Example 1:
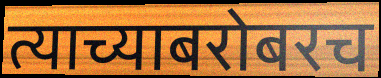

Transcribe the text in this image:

त्याच्याबरोबरच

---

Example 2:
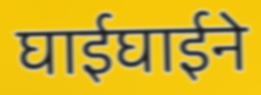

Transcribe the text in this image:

घाईघाईने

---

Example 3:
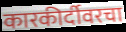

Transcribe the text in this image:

कारकीर्दीवरचा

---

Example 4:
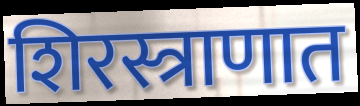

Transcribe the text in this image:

शिरस्त्राणात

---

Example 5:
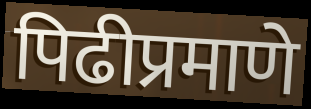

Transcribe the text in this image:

पिढीप्रमाणे